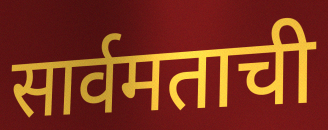
सार्वमताची